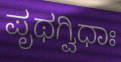
ಪೃಥಗ್ವಿಧಾಃ